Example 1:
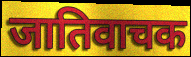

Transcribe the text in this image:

जातिवाचक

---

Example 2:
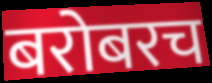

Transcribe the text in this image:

बरोबरच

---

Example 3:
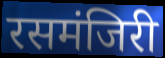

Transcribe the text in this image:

रसमंजिरी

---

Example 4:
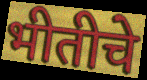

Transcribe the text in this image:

भीतीचे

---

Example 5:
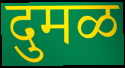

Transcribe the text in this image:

दुमळ